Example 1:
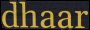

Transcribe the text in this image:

dhaar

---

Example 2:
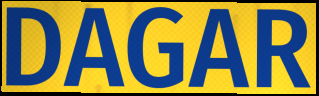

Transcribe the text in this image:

DAGAR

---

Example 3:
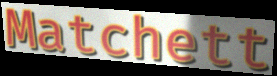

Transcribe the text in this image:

Matchett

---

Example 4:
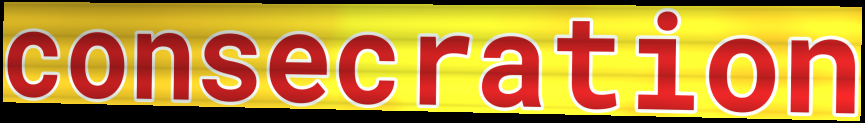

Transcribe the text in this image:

consecration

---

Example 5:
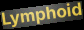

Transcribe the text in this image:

Lymphoid